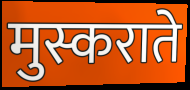
मुस्‍कराते